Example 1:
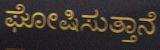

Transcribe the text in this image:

ಘೋಷಿಸುತ್ತಾನೆ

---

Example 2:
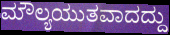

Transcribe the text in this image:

ಮೌಲ್ಯಯುತವಾದದ್ದು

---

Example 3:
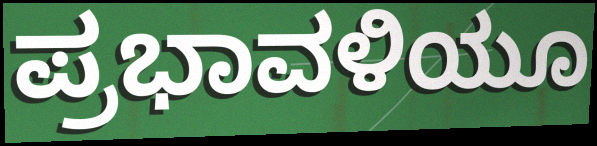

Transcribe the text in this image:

ಪ್ರಭಾವಳಿಯೂ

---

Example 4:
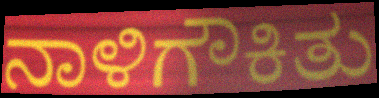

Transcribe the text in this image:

ನಾಳಿಗೌಕಿತು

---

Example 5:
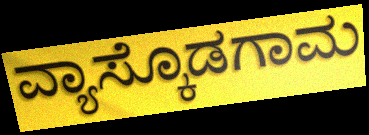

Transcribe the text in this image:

ವ್ಯಾಸ್ಕೊಡಗಾಮ